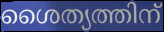
ശൈത്യത്തിന്